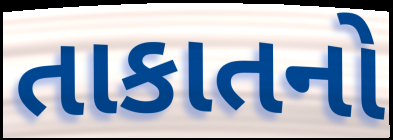
તાકાતનો